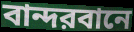
বান্দরবানে